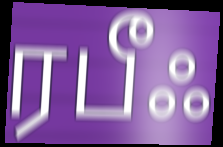
ரபீஃ